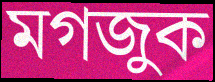
মগজুক